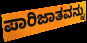
ಪಾರಿಜಾತವನ್ನು